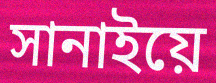
সানাইয়ে